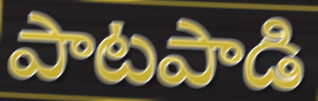
పాటపాడి